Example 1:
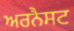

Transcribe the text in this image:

ਅਰਨੈਸਟ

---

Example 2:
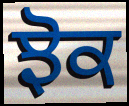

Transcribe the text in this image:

ਝੋਕ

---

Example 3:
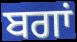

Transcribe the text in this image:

ਬਗਾਂ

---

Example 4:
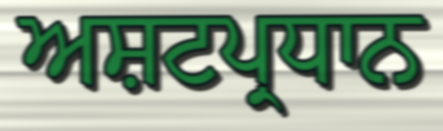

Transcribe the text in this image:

ਅਸ਼ਟਪ੍ਰਧਾਨ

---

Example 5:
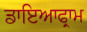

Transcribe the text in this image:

ਡਾਇਆਫ੍ਰਾਮ